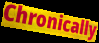
Chronically